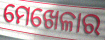
ମେଖେଳାର